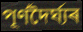
পূৰ্ণদৈৰ্ঘ্যৰ